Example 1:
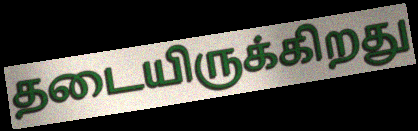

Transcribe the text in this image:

தடையிருக்கிறது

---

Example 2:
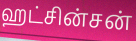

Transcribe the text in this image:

ஹட்சின்சன்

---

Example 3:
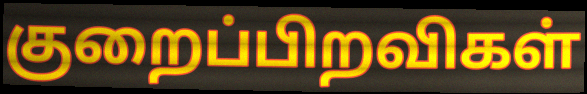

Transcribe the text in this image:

குறைப்பிறவிகள்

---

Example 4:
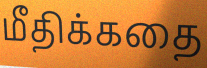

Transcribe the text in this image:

மீதிக்கதை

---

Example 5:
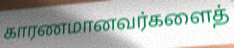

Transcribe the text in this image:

காரணமானவர்களைத்